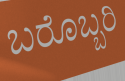
ಬರೊಬ್ಬರಿ